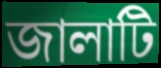
জালাটি